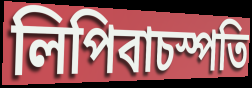
লিপিবাচস্পতি